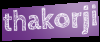
thakorji